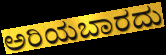
ಅರಿಯಬಾರದು